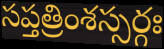
సప్తత్రింశస్సర్గః